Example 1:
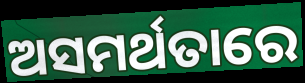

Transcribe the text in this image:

ଅସମର୍ଥତାରେ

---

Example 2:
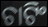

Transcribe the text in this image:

ଚାଟିଂ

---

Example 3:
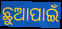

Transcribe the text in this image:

ଛୁଆପାଇଁ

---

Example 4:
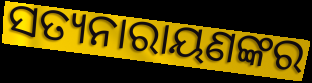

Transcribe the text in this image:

ସତ୍ୟନାରାୟଣଙ୍କର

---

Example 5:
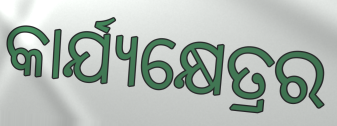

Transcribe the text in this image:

କାର୍ଯ୍ୟକ୍ଷେତ୍ରର